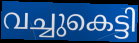
വച്ചുകെട്ടി